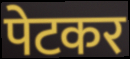
पेटकर